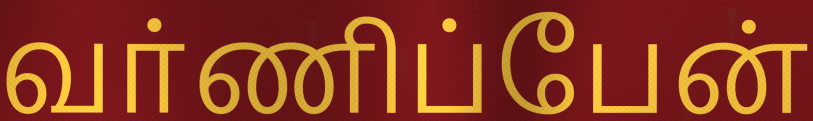
வர்ணிப்பேன்